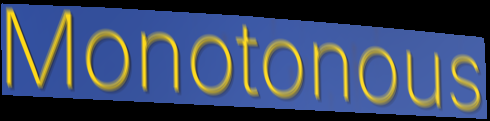
Monotonous